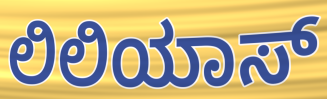
ಲಿಲಿಯಾಸ್